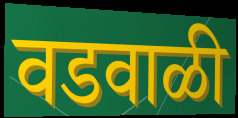
वडवाळी